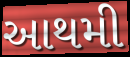
આથમી